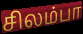
சிலம்பா